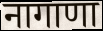
नागाणा